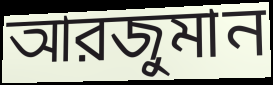
আরজুমান